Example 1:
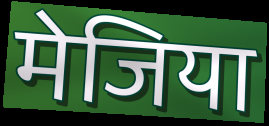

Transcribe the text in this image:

मेजिया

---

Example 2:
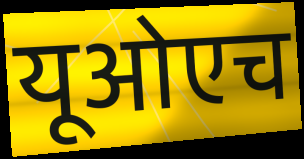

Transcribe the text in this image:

यूओएच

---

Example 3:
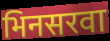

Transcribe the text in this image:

भिनसरवा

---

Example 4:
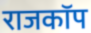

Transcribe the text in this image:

राजकॉप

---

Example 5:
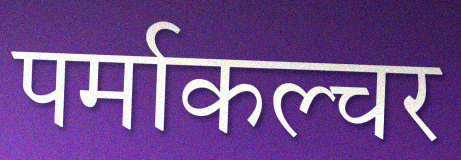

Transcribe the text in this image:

पर्माकल्चर